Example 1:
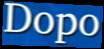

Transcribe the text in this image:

Dopo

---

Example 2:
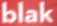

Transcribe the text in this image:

blak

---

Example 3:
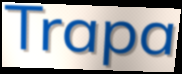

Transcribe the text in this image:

Trapa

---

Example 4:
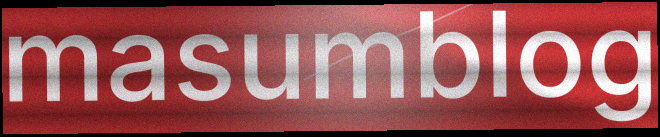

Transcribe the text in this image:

masumblog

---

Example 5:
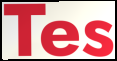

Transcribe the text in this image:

Tes